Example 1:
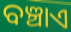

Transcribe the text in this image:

ବଞ୍ଚାଏ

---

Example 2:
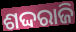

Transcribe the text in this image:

ଶଦ୍ଦରାଜି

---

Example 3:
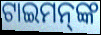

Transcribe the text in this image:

ଟାଇମନ୍‌ଙ୍କ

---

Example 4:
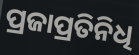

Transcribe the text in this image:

ପ୍ରଜାପ୍ରତିନିଧି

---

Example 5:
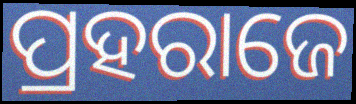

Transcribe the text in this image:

ପ୍ରହରାଜେ